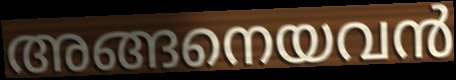
അങ്ങനെയവൻ